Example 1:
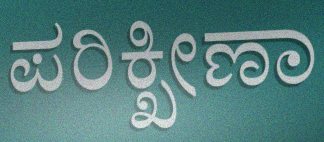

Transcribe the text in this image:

ಪರಿಕ್ಖೀಣಾ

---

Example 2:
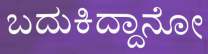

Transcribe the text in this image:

ಬದುಕಿದ್ದಾನೋ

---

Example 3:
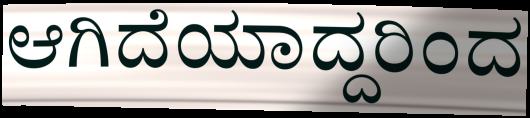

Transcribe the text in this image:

ಆಗಿದೆಯಾದ್ದರಿಂದ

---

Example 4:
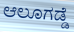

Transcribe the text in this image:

ಆಲೂಗಡ್ಡೆ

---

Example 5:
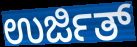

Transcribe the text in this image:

ಉರ್ಜಿತ್